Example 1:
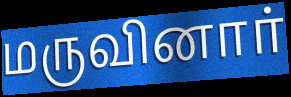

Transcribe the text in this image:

மருவினார்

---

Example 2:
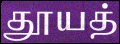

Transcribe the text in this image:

தூயத்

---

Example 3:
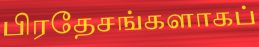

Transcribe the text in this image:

பிரதேசங்களாகப்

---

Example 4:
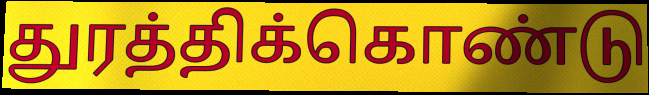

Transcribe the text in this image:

துரத்திக்கொண்டு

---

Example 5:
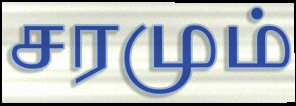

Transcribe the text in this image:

சரமும்